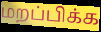
மறப்பிக்க